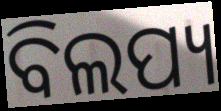
ବିଲପ୍ୟ